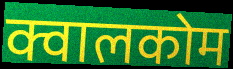
क्वालकोम